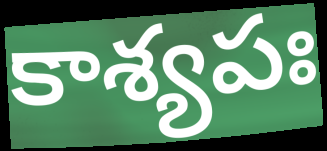
కాశ్యపః